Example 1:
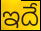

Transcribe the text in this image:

ఇదే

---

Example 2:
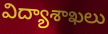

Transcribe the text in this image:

విద్యాశాఖలు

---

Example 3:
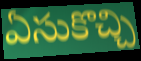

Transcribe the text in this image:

ఏసుకొచ్చి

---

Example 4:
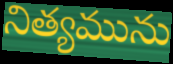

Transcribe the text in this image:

నిత్యమును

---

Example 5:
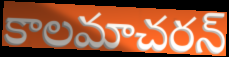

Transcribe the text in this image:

కాలమాచరన్